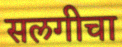
सलगीचा